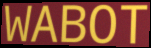
WABOT